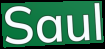
Saul